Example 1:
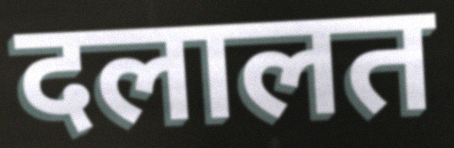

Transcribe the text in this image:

दलालत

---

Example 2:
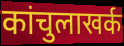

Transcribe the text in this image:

कांचुलाखर्क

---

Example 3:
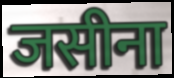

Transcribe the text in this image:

जसीना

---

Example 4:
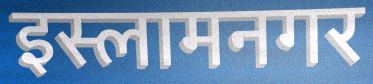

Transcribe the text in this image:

इस्लामनगर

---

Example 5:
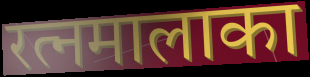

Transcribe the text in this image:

रत्नमालाका